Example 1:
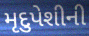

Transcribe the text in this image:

મૃદુપેશીની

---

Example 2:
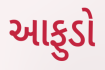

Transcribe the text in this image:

આફુડો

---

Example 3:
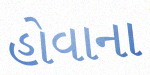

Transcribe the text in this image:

હોવાના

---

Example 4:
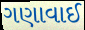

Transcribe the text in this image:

ગણાવાઈ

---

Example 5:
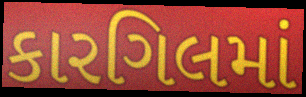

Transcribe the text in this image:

કારગિલમાં